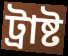
ট্রাষ্ট